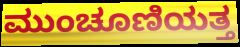
ಮುಂಚೂಣಿಯತ್ತ